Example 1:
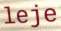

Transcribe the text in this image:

leje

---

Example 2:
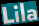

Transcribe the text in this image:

Lila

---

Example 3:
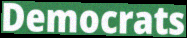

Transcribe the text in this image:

Democrats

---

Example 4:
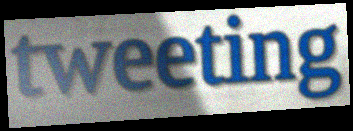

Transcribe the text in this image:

tweeting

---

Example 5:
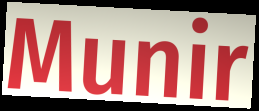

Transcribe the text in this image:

Munir